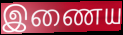
இணைய